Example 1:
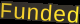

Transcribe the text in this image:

Funded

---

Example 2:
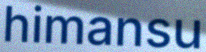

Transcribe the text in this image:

himansu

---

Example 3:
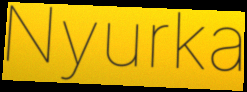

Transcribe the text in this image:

Nyurka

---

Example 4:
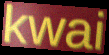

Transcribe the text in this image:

kwai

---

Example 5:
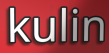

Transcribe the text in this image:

kulin